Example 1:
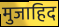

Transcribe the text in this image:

मुजाहिद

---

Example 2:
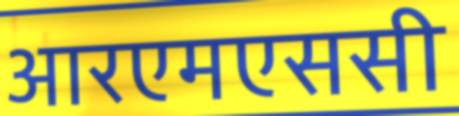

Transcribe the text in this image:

आरएमएससी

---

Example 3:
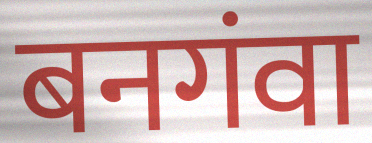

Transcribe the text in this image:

बनगंवा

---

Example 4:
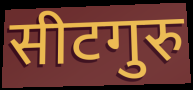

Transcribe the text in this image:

सीटगुरु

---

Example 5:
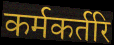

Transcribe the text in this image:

कर्मकर्तरि